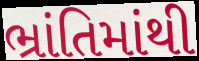
ભ્રાંતિમાંથી